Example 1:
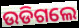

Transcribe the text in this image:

ଉଡିଗଲେ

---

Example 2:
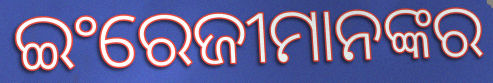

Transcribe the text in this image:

ଇଂରେଜୀମାନଙ୍କର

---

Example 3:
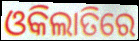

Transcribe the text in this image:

ଓକିଲାତିରେ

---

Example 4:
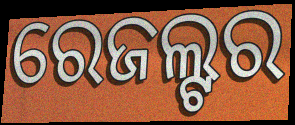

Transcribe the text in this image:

ରେଜଲ୍ଟର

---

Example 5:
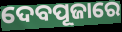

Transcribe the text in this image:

ଦେବପୂଜାରେ